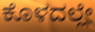
ಕೊಳದಲ್ಲೇ